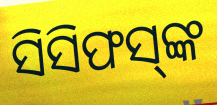
ସିସିଫସ୍‌ଙ୍କ